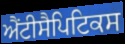
ਐਂਟੀਸੈਪਿਟਿਕਸ